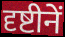
दृष्टीनें